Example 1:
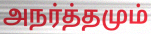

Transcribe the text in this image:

அநர்த்தமும்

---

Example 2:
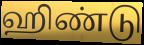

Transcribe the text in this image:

ஹிண்டு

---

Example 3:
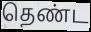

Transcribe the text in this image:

தெண்ட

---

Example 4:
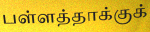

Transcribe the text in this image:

பள்ளத்தாக்குக்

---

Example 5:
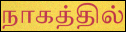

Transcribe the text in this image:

நாகத்தில்